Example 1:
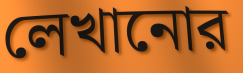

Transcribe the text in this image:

লেখানোর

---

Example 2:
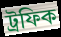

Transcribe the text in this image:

ট্রফিক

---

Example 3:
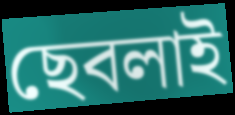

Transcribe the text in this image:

ছেবলাই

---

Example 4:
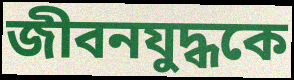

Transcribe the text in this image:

জীবনযুদ্ধকে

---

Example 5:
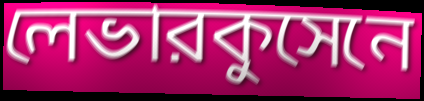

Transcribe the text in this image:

লেভারকুসেনে